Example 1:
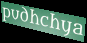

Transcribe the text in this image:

pudhchya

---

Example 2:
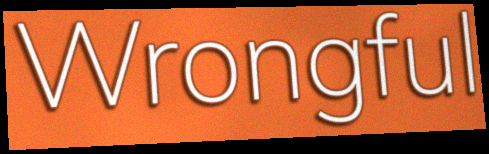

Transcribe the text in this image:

Wrongful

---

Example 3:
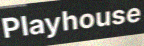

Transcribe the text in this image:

Playhouse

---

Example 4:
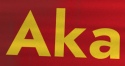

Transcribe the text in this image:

Aka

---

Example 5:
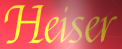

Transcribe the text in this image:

Heiser